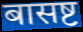
बासष्ट